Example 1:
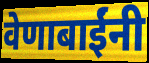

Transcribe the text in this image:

वेणाबाईंनी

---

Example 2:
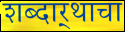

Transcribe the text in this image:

शब्दार्थाचा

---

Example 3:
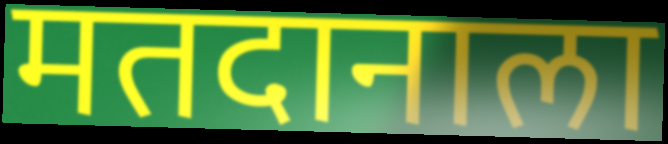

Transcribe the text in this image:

मतदानाला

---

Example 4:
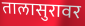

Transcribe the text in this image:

तालासुरावर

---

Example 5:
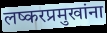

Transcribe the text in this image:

लष्करप्रमुखांना